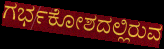
ಗರ್ಭಕೋಶದಲ್ಲಿರುವ